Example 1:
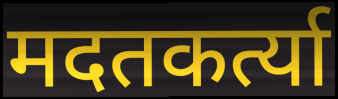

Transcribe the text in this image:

मदतकर्त्या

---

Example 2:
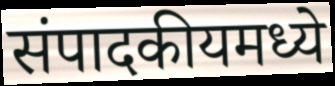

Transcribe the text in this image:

संपादकीयमध्ये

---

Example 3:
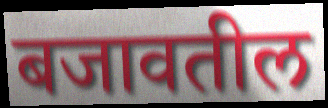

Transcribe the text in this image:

बजावतील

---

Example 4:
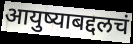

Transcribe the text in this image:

आयुष्याबद्दलचं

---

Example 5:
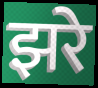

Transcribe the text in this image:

झरे